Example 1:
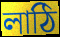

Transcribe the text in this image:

লাঠি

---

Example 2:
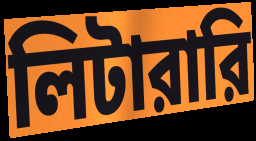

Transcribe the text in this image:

লিটারারি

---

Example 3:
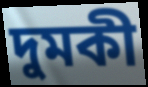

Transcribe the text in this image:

দুমকী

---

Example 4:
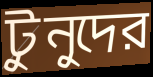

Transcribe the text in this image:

টুনুদের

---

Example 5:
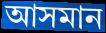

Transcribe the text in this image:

আসমান